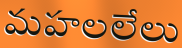
మహలలేలు